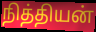
நித்தியன்